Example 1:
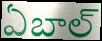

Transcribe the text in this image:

ఏబాల్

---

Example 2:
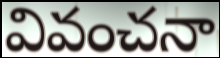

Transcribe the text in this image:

వివంచనా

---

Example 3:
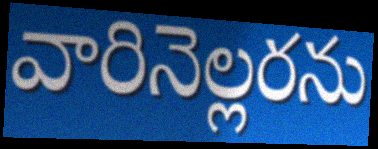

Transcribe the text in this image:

వారినెల్లరను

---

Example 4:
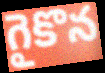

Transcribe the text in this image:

గైకొన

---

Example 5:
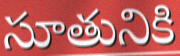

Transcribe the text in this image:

సూతునికి